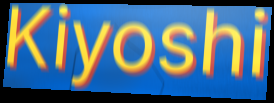
Kiyoshi